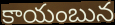
కాయంబున